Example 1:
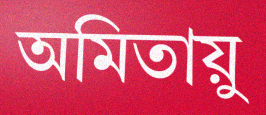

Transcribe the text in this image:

অমিতায়ু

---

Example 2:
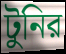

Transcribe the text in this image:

টুনির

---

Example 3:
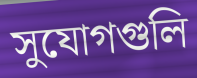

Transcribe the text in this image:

সুযোগগুলি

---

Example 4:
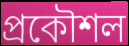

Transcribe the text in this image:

প্রকৌশল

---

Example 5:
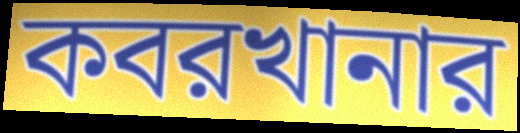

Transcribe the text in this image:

কবরখানার